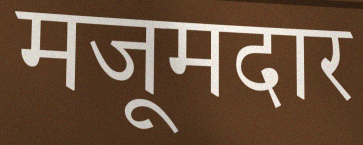
मजूमदार